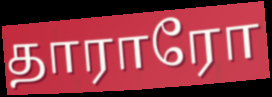
தாராரோ